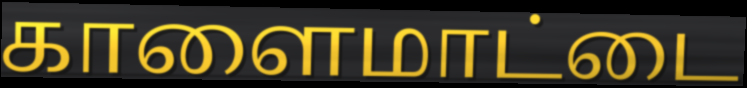
காளைமாட்டை